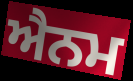
ਐਨਮ